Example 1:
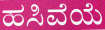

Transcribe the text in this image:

ಹಸಿವೆಯೆ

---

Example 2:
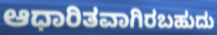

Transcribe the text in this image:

ಆಧಾರಿತವಾಗಿರಬಹುದು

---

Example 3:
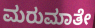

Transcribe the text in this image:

ಮರುಮಾತೇ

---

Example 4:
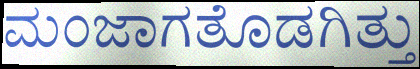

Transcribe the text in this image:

ಮಂಜಾಗತೊಡಗಿತ್ತು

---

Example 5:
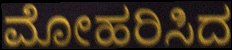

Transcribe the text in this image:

ಮೋಹರಿಸಿದ